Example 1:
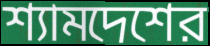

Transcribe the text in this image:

শ্যামদেশের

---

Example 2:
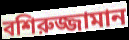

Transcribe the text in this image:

বশিরুজ্জামান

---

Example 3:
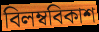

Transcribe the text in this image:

বিলম্ববিকাশ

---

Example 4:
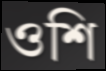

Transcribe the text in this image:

ওশি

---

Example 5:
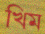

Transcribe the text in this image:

খিম